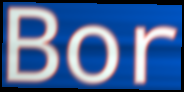
Bor